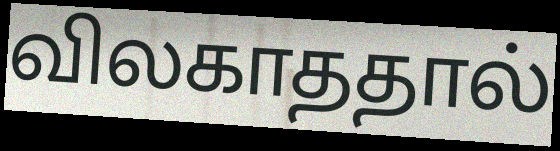
விலகாததால்